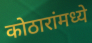
कोठारांमध्ये